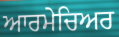
ਆਰਮੇਚਿਅਰ